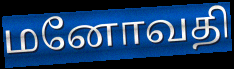
மனோவதி